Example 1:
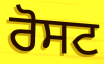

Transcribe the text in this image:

ਰੋਸਟ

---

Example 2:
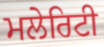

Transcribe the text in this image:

ਮਲੇਰਿਟੀ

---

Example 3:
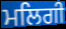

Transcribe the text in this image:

ਮਲਿਗੀ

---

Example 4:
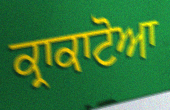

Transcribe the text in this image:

ਕ੍ਰਾਕਾਟੋਆ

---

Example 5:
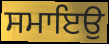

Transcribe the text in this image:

ਸਮਾਇਉ